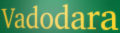
Vadodara